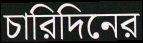
চারিদিনের